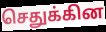
செதுக்கின